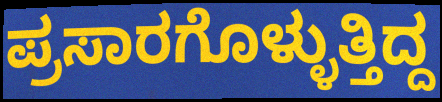
ಪ್ರಸಾರಗೊಳ್ಳುತ್ತಿದ್ದ